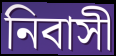
নিবাসী